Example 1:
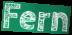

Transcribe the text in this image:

Fern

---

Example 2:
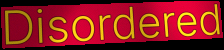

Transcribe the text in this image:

Disordered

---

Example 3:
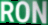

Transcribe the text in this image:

RON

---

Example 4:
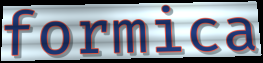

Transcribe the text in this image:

formica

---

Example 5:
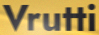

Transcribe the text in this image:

Vrutti